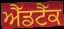
ਐੱਡਟੈੱਕ